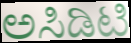
ಅಸಿಡಿಟಿ